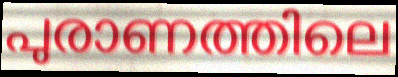
പുരാണത്തിലെ